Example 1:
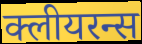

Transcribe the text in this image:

क्लीयरन्स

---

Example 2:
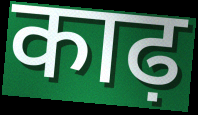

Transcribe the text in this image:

काढ़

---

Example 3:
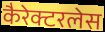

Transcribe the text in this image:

कैरेक्टरलेस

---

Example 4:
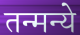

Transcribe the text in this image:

तन्मन्ये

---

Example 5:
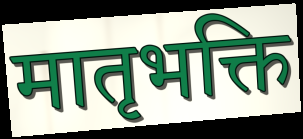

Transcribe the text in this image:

मातृभक्ति